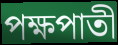
পক্ষপাতী